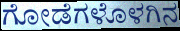
ಗೋಡೆಗಳೊಳಗಿನ